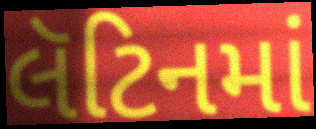
લૅટિનમાં